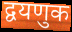
द्वयणुक